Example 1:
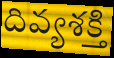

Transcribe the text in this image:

దివ్యశక్తి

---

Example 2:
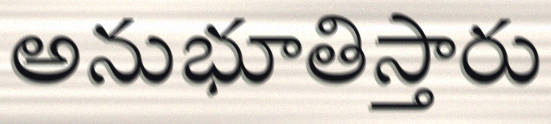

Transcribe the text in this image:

అనుభూతిస్తారు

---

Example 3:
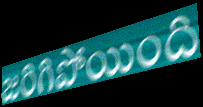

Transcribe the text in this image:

జరిగిపోయింది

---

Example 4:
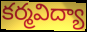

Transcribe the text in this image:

కర్మవిద్యా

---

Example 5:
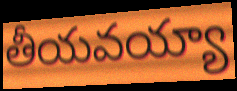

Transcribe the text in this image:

తీయవయ్యా